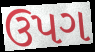
ઉપગ